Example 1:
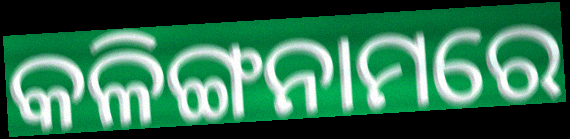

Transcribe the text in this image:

କଳିଙ୍ଗନାମରେ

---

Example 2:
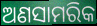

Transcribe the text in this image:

ଅଣସାମରିକ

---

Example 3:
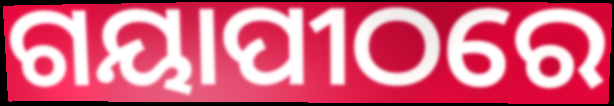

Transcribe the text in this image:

ଗୟାପୀଠରେ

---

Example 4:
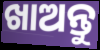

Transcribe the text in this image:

ଖାଅନ୍ତୁ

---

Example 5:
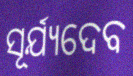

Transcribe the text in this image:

ସୂର୍ଯ୍ୟଦେବ